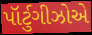
પૉર્ટુગીઝોએ